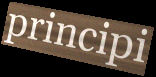
principi